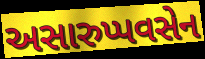
અસારુપ્પવસેન